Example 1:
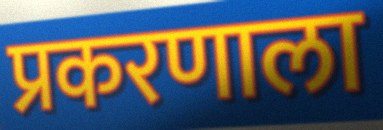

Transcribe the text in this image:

प्रकरणाला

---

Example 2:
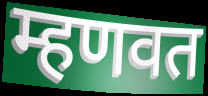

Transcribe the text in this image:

म्हणवत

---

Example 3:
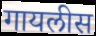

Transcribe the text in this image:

गायलीस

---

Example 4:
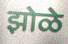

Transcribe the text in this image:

झोळे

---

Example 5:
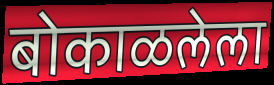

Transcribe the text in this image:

बोकाळलेला